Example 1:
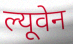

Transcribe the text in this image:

ल्यूवेन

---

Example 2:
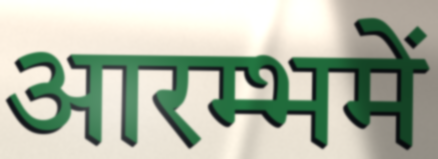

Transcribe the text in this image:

आरम्भमें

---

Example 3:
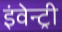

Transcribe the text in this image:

इंवेन्ट्री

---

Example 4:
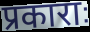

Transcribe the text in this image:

प्रकाराः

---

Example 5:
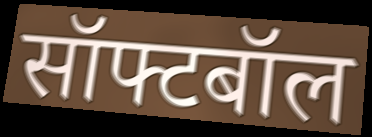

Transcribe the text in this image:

सॉफ्टबॉल